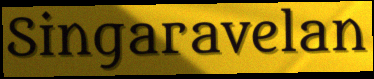
Singaravelan